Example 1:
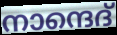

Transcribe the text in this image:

നാന്ദെദ്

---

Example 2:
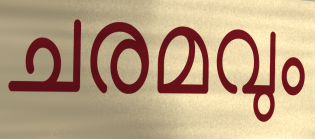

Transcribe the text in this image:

ചരമവും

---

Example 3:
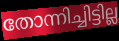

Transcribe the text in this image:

തോന്നിച്ചിട്ടില്ല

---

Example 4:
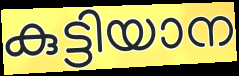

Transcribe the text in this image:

കുട്ടിയാന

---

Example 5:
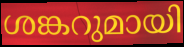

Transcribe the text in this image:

ശങ്കറുമായി